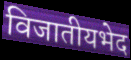
विजातीयभेद